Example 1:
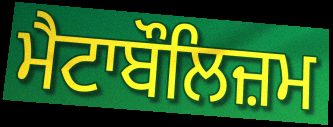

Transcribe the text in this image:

ਮੈਟਾਬੌਲਿਜ਼ਮ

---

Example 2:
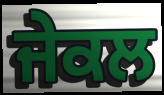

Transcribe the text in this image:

ਜੇਕਲ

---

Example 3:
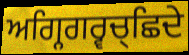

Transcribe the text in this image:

ਅਗ੍ਨਿਗਰ੍ਵਚ੍ਛਿਦੇ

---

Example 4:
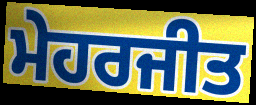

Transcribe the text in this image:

ਮੇਹਰਜੀਤ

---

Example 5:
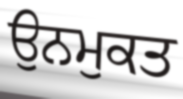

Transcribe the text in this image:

ਉਨਮੁਕਤ